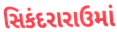
સિકંદરારાઉમાં